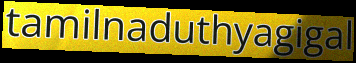
tamilnaduthyagigal